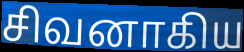
சிவனாகிய